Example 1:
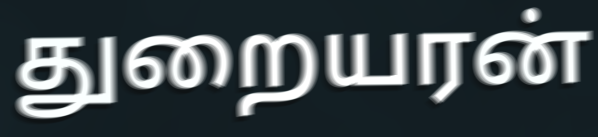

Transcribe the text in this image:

துறையரன்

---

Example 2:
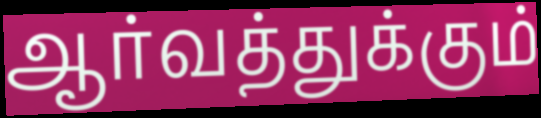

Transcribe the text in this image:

ஆர்வத்துக்கும்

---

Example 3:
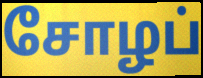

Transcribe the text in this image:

சோழப்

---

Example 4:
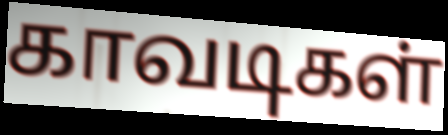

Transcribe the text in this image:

காவடிகள்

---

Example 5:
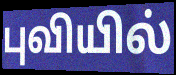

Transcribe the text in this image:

புவியில்